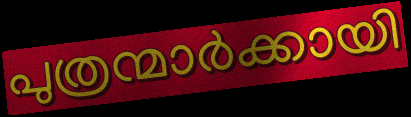
പുത്രന്മാർക്കായി